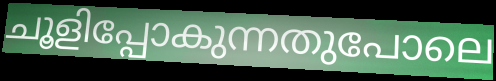
ചൂളിപ്പോകുന്നതുപോലെ